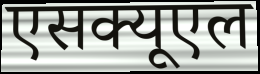
एसक्यूएल